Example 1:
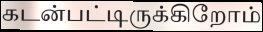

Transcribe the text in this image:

கடன்பட்டிருக்கிறோம்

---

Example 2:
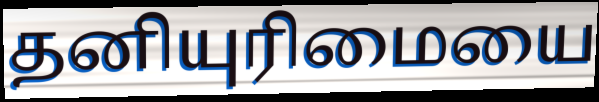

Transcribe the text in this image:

தனியுரிமையை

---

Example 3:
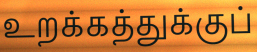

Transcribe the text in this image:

உறக்கத்துக்குப்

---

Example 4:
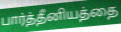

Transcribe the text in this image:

பார்த்தீனியத்தை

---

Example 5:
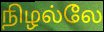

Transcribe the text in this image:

நிழல்லே